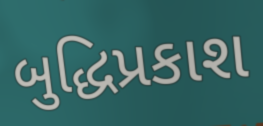
બુદ્ધિપ્રકાશ